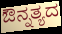
ಔನ್ನತ್ಯದ